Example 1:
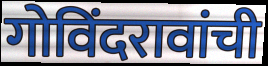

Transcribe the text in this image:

गोविंदरावांची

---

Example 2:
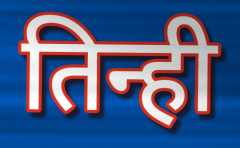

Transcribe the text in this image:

तिन्ही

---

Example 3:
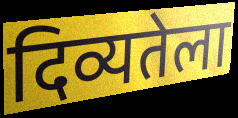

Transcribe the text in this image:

दिव्यतेला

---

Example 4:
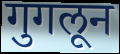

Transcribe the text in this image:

गुगलून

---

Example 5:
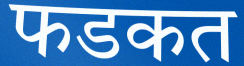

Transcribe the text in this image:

फडकत